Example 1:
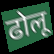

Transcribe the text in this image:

ढोलू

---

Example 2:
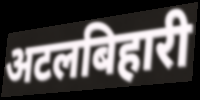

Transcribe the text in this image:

अटलबिहारी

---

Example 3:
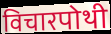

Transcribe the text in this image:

विचारपोथी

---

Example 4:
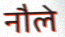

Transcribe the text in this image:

नौले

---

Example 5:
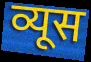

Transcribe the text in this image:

व्यूस